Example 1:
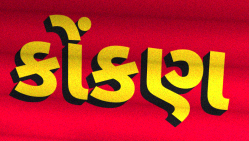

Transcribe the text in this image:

કોંકણ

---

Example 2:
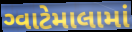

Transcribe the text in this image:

ગ્વાટેમાલામાં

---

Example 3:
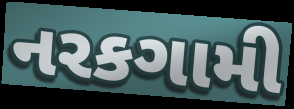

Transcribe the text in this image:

નરકગામી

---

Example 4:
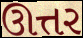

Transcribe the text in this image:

ઊત્તર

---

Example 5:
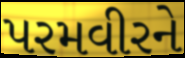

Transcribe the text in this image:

પરમવીરને